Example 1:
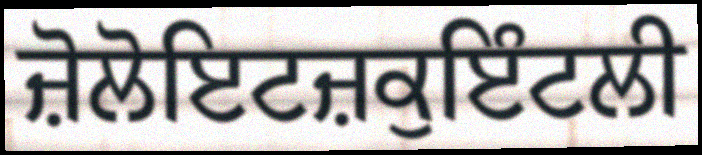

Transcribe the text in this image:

ਜ਼ੋਲੋਇਟਜ਼ਕੁਇੰਟਲੀ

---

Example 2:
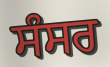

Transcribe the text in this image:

ਸੰਸਰ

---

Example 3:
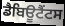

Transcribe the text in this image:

ਡੈਬਿਊਟੈਂਟਸ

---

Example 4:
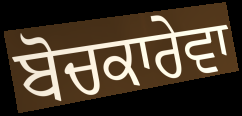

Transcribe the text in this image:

ਬੋਚਕਾਰੇਵਾ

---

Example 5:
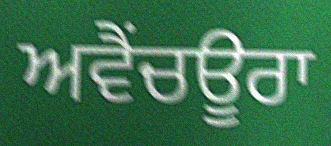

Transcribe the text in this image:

ਅਵੈਂਚਊਰਾ